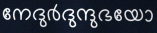
നേദുർദുന്ദുഭയോ